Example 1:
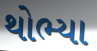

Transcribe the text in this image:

થોભ્યા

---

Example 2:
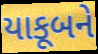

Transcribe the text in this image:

યાકૂબને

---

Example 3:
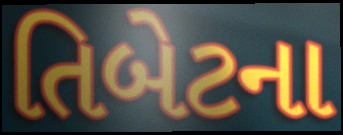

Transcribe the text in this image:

તિબેટના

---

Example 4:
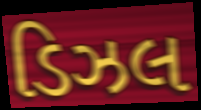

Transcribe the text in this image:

ડિઝલ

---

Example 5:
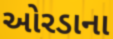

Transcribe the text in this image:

ઓરડાના